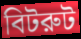
বিটরুট